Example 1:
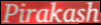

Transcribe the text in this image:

Pirakash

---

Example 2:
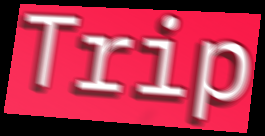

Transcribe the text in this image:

Trip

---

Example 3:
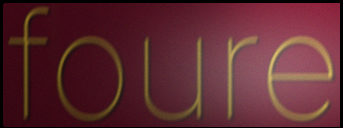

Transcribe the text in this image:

foure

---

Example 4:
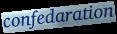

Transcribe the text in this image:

confedaration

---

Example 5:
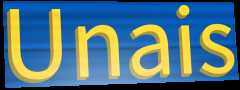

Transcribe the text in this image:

Unais